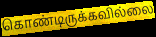
கொண்டிருக்கவில்லை